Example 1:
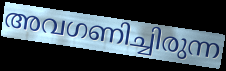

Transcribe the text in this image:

അവഗണിച്ചിരുന്ന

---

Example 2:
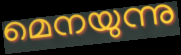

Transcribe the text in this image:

മെനയുന്നു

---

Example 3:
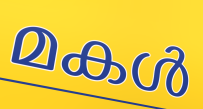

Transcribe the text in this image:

മകൾ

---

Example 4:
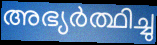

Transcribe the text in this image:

അഭ്യർത്ഥിച്ചു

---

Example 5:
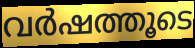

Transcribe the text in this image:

വർഷത്തൂടെ